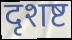
दृशष्ट